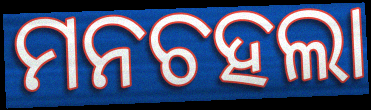
ମନଚହଲା